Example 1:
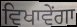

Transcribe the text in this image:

ਵਿਖਾਵੇਂਗਾ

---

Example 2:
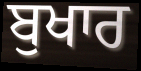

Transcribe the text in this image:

ਬੁਖਾਰ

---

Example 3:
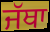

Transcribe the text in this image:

ਜੱਥਾ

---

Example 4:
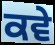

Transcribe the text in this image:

ਕਵੇ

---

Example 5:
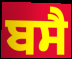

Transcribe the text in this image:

ਬਸੈ